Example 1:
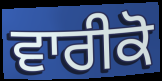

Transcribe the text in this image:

ਵਾਰੀਕੋ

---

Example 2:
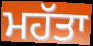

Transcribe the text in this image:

ਮਹੱਤਾ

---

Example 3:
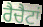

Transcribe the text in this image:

ਰੈਚੈਟਾਂ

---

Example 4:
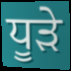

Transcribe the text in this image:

ਧੂੜੇ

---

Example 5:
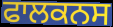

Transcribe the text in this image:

ਫਾਲਕਨਸ